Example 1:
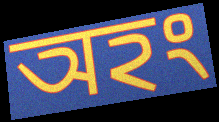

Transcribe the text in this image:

অহং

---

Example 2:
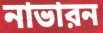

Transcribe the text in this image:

নাভারন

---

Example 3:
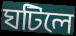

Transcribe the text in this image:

ঘটিলে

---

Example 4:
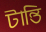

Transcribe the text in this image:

টান্তি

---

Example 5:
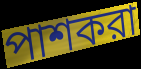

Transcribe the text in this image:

পাশকরা